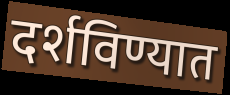
दर्शविण्यात